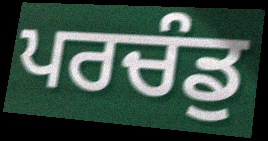
ਪਰਚੰਡੁ